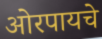
ओरपायचे